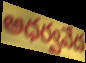
అధర్వవేద